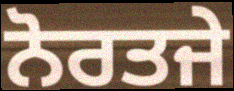
ਨੋਰਤਜੇ